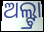
ଅଲ୍ଟ୍ରା